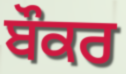
ਬੌਕਰ